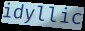
idyllic